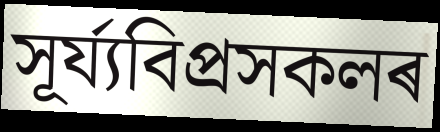
সূৰ্য্যবিপ্ৰসকলৰ